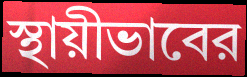
স্থায়ীভাবের